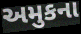
અમુકના